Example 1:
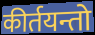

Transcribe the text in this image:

कीर्तयन्तो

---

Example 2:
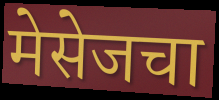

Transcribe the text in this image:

मेसेजचा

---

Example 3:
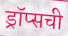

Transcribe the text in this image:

ड्रॉप्सची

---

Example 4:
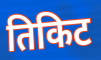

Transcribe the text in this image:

तिकिट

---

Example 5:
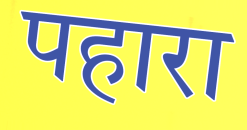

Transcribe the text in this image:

पहारा